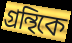
গ্রন্থিকে